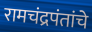
रामचंद्रपंतांचे